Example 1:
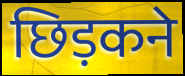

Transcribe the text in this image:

छिड़कने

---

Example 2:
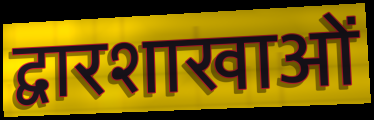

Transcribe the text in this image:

द्वारशाखाओं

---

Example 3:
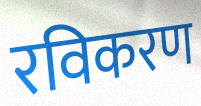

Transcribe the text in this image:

रविकरण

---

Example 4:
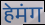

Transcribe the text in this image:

हेमंग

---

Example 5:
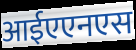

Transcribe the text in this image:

आईएएनएस